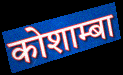
कोशाम्बा